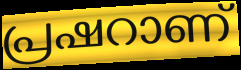
പ്രഷറാണ്